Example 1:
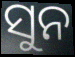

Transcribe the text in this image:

ସୁନ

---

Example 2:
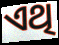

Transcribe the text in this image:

ଏଥି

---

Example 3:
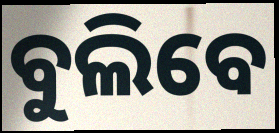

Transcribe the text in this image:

ବୁଲିବେ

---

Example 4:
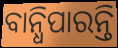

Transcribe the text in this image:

ବାନ୍ଧିପାରନ୍ତି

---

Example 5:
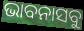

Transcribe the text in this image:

ଭାବନାସବୁ